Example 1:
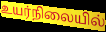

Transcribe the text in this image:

உயர்நிலையில்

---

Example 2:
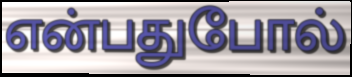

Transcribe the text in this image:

என்பதுபோல்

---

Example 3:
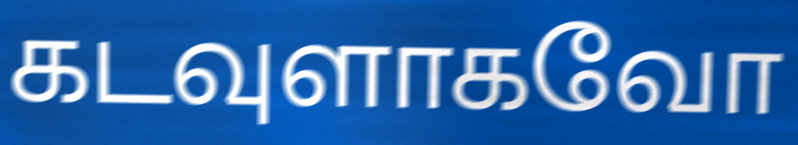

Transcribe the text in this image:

கடவுளாகவோ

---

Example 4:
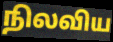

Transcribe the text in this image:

நிலவிய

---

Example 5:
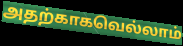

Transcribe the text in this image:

அதற்காகவெல்லாம்